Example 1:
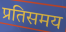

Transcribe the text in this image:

प्रतिसमय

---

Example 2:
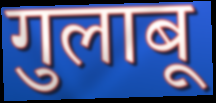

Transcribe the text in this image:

गुलाबू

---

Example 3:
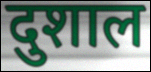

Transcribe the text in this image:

दुशाल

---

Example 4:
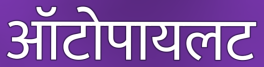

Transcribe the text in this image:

ऑटोपायलट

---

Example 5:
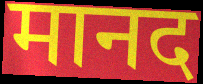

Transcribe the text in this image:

मानद